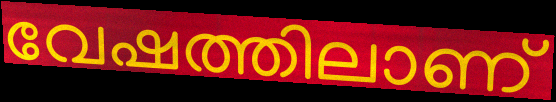
വേഷത്തിലാണ്